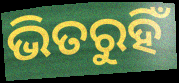
ଭିତରୁହିଁ